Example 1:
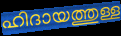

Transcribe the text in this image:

ഹിദായത്തുള്ള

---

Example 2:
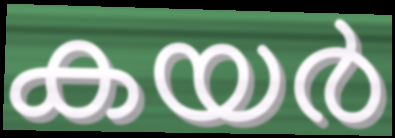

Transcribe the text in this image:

കയർ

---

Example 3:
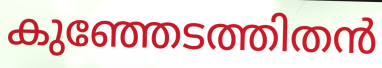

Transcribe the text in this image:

കുഞ്ഞേടത്തിതൻ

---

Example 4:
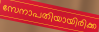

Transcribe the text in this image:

സേനാപതിയായിരിക്ക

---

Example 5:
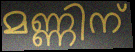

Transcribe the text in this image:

മണ്ണിന്